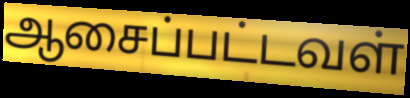
ஆசைப்பட்டவள்